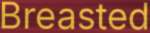
Breasted